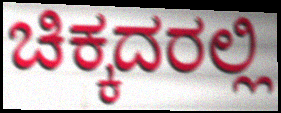
ಚಿಕ್ಕದರಲ್ಲಿ